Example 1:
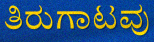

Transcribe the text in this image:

ತಿರುಗಾಟವು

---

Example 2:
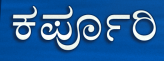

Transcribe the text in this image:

ಕರ್ಪೂರಿ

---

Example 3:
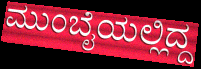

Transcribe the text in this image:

ಮುಂಬೈಯಲ್ಲಿದ್ದ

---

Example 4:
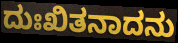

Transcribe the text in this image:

ದುಃಖಿತನಾದನು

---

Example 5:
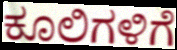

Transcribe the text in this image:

ಕೂಲಿಗಳಿಗೆ